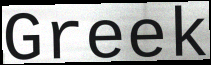
Greek